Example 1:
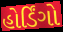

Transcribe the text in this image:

હોર્ડિંગો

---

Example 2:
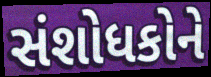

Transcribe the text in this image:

સંશોધકોને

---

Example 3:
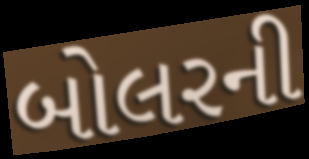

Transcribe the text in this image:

બોલરની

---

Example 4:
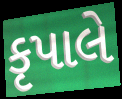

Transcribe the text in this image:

કૃપાલે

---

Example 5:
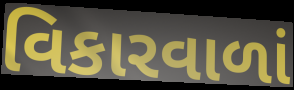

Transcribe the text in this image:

વિકારવાળાં